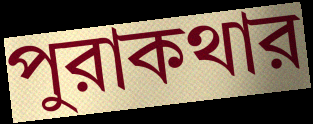
পুরাকথার